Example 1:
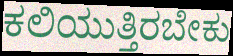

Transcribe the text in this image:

ಕಲಿಯುತ್ತಿರಬೇಕು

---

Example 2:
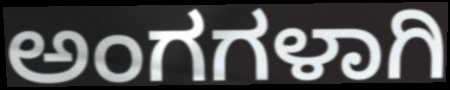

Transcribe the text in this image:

ಅಂಗಗಳಾಗಿ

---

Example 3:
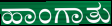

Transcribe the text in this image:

ಹಾಂಗಾತು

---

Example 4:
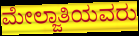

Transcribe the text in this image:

ಮೇಲ್ಜಾತಿಯವರು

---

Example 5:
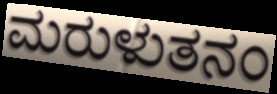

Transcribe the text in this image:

ಮರುಳುತನಂ